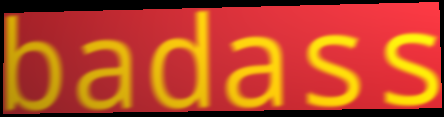
badass